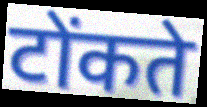
टोंकते